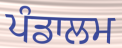
ਪੰਡਾਲਮ